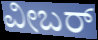
ವೀಬರ್